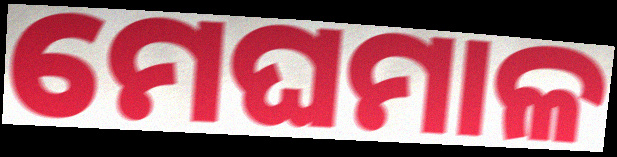
ମେଘମାଳ